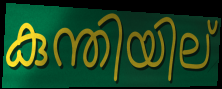
കുന്തിയില്